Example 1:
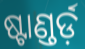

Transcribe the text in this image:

ଷ୍ଟାଣ୍ଡର୍ଡ଼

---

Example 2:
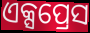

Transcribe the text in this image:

ଏକ୍ସପ୍ରେସ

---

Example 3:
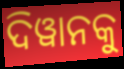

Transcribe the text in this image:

ଦିୱାନକୁ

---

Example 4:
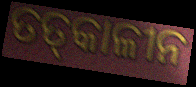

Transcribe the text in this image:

ତତ୍‍କାଳୀନ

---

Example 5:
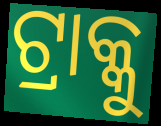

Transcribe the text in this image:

ଟ୍ରାକ୍କୁ